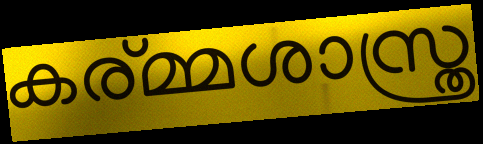
കര്മ്മശാസ്ത്ര